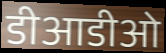
डीआडीओ